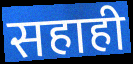
सहाही